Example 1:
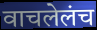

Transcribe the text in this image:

वाचलेलंच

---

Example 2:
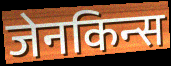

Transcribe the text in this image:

जेनकिन्स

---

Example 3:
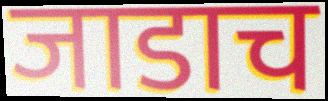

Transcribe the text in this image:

जाडाच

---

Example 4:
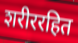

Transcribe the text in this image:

शरीररहित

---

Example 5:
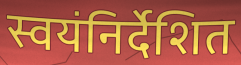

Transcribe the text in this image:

स्वयंनिर्देशित